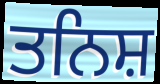
ਤਨਿਸ਼